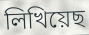
লিখিয়েছ